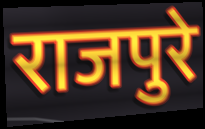
राजपुरे